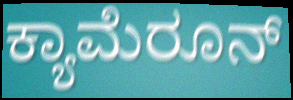
ಕ್ಯಾಮೆರೂನ್